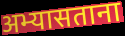
अभ्यासताना